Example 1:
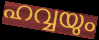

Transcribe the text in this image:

ഹവ്വയും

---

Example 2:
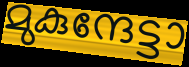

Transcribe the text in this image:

മുകുന്ദേട്ടാ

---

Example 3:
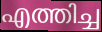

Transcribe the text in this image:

എത്തിച്ച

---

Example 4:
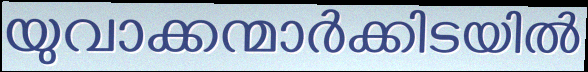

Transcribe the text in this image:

യുവാക്കന്മാർക്കിടയിൽ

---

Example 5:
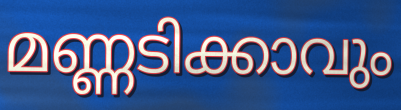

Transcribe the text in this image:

മണ്ണടിക്കാവും